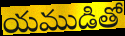
యముడితో